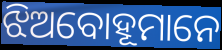
ଝିଅବୋହୂମାନେ